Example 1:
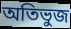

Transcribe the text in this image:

অতিভুজ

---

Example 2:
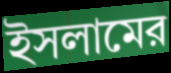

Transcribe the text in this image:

ইসলামের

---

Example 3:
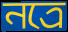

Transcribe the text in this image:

নত্রে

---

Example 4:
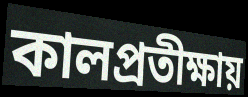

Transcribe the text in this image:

কালপ্রতীক্ষায়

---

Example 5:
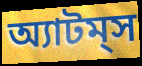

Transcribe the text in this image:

অ্যাটম্‌স